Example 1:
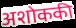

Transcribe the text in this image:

अशोककी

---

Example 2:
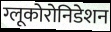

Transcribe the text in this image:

ग्लूकोरोनिडेशन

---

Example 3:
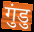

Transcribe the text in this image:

गुंडु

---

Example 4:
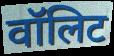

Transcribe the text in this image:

वॉलिट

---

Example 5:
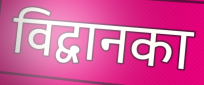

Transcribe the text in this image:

विद्वानका